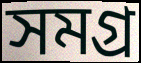
সমগ্ৰ